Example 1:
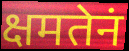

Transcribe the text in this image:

क्षमतेनं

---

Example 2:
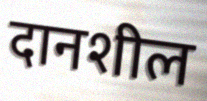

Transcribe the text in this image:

दानशील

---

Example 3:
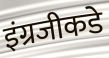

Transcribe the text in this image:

इंग्रजीकडे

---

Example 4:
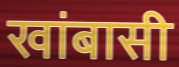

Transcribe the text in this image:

खांबासी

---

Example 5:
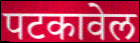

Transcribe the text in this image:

पटकावेल